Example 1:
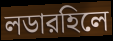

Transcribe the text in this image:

লডারহিলে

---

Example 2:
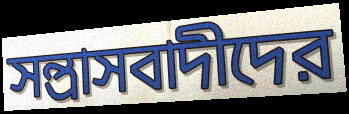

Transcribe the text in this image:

সন্ত্রাসবাদীদের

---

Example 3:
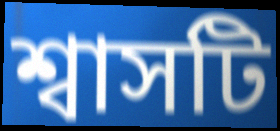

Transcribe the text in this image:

শ্বাসটি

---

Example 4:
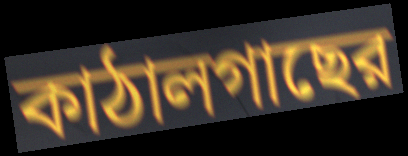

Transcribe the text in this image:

কাঠালগাছের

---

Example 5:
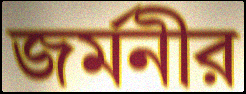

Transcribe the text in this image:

জর্মনীর